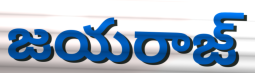
జయరాజ్